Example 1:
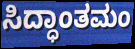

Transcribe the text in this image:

ಸಿದ್ಧಾಂತಮಂ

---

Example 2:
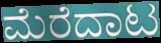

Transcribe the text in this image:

ಮೆರೆದಾಟ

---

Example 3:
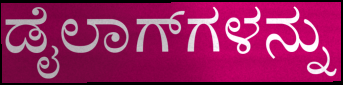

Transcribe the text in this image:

ಡೈಲಾಗ್‌ಗಳನ್ನು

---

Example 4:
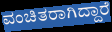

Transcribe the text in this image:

ವಂಚಿತರಾಗಿದ್ದಾರೆ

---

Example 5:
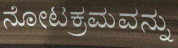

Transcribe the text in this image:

ನೋಟಕ್ರಮವನ್ನು